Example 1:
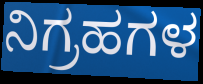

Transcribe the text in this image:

ನಿಗ್ರಹಗಳ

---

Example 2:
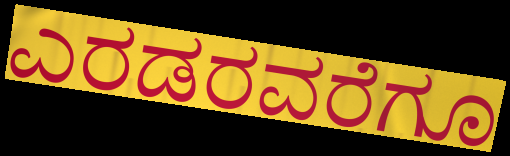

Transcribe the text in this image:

ಎರಡರವರೆಗೂ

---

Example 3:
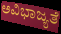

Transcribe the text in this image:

ಅವಿಭಾಜ್ಯತೆ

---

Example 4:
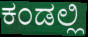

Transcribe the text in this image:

ಕಂಡಲ್ಲಿ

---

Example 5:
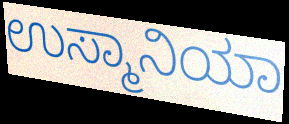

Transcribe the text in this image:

ಉಸ್ಮಾನಿಯಾ